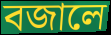
বজালে